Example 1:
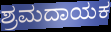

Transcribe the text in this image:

ಶ್ರಮದಾಯಕ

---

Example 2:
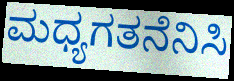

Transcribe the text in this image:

ಮಧ್ಯಗತನೆನಿಸಿ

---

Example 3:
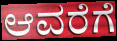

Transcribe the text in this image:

ಆವರೆಗೆ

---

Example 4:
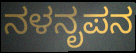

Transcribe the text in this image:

ನಳನೃಪನ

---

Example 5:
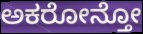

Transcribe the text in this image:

ಅಕರೋನ್ತೋ